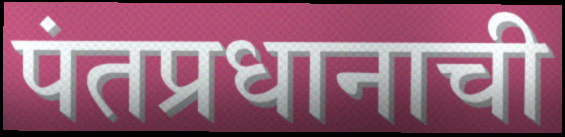
पंतप्रधानाची